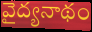
వైద్యనాథం